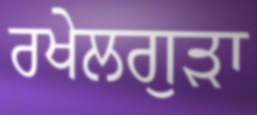
ਰਖੇਲਗੁੜਾ